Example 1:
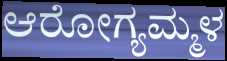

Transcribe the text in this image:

ಆರೋಗ್ಯಮ್ಮಳ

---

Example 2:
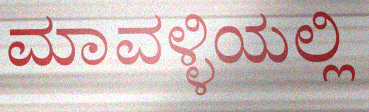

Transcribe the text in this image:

ಮಾವಳ್ಳಿಯಲ್ಲಿ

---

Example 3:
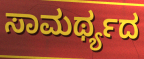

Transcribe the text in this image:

ಸಾಮರ್ಥ್ಯದ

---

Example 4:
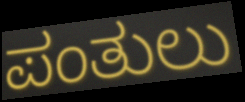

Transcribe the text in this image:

ಪಂತುಲು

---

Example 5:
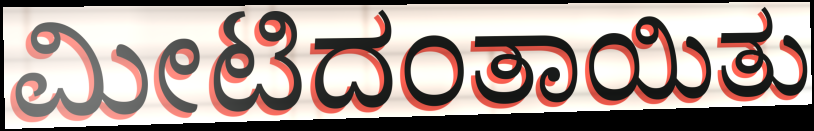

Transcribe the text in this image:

ಮೀಟಿದಂತಾಯಿತು